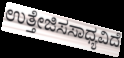
ಉತ್ತೇಜಿಸಸಾಧ್ಯವಿದೆ